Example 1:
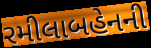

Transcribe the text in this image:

રમીલાબહેનની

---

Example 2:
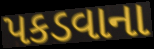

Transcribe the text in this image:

પકડવાના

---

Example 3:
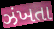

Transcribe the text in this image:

ઝંખતા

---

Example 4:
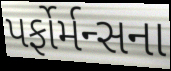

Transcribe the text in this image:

પર્ફોર્મન્સના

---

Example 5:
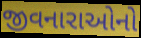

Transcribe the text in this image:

જીવનારાઓનો